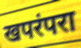
खपरंपरा